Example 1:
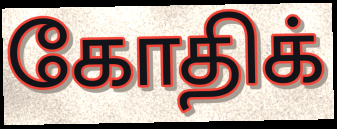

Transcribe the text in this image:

கோதிக்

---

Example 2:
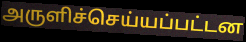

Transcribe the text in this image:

அருளிச்செய்யப்பட்டன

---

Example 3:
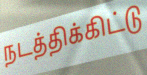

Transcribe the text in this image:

நடத்திக்கிட்டு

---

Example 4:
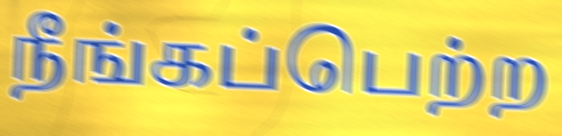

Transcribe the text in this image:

நீங்கப்பெற்ற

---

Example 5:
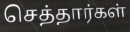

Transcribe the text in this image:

செத்தார்கள்